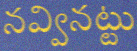
నవ్వినట్టు